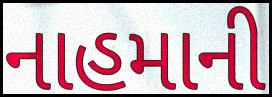
નાહમાની